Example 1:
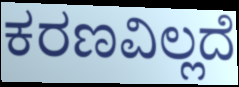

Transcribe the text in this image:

ಕರಣವಿಲ್ಲದೆ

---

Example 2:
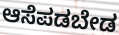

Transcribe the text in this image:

ಆಸೆಪಡಬೇಡ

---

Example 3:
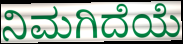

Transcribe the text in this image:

ನಿಮಗಿದೆಯೆ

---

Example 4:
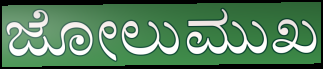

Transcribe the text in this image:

ಜೋಲುಮುಖ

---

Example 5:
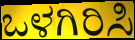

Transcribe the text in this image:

ಒಳಗಿರಿಸಿ